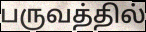
பருவத்தில்